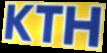
KTH